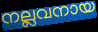
നല്ലവനായ